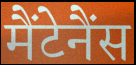
मैंटेनैंस